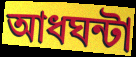
আধঘন্টা